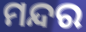
ମନ୍ଦର